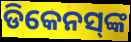
ଡିକେନସ୍‌ଙ୍କ